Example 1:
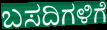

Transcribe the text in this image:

ಬಸದಿಗಳಿಗೆ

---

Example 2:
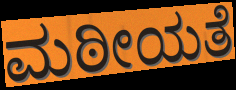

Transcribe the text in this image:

ಮಠೀಯತೆ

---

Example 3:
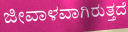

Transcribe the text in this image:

ಜೀವಾಳವಾಗಿರುತ್ತದೆ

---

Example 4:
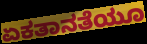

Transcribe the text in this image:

ಏಕತಾನತೆಯೂ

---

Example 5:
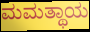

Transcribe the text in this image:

ಮಮತ್ಥಾಯ